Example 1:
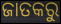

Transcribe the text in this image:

ଜାତକରୁ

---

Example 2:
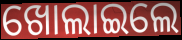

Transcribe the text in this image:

ଖୋଲାଇଲେ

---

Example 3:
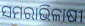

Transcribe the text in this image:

ସମରାଭିଳାଷୀ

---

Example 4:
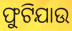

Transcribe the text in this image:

ଫୁଟିଯାଉ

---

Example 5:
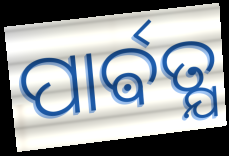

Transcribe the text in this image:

ପାର୍ଵତ୍ଯ